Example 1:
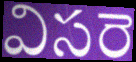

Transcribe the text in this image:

విసరె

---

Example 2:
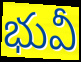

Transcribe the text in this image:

భువీ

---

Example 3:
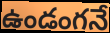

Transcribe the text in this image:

ఉండంగనే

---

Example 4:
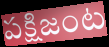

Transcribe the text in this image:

పక్షిజంట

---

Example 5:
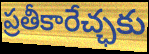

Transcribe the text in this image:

ప్రతీకారేచ్ఛకు